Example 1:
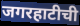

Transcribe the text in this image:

जगरहाटीची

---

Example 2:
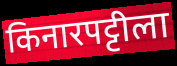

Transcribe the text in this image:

किनारपट्टीला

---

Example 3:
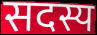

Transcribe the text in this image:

सदस्‍य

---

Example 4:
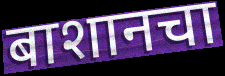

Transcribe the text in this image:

बाशानचा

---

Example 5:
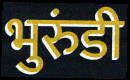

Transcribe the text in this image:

भुरुंडी